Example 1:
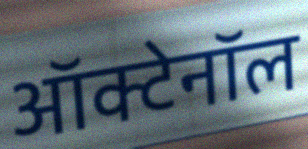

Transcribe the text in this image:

ऑक्टेनॉल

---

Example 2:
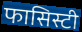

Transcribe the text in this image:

फासिस्टी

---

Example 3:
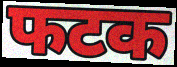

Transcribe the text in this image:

फटक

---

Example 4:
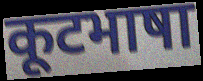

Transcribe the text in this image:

कूटभाषा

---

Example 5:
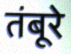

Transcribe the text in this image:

तंबूरे